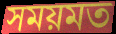
সময়মত